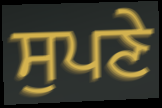
ਸੁਪਣੇ